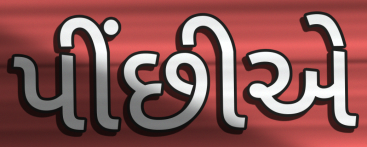
પીંછીએ